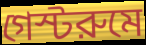
গেস্টরুমে